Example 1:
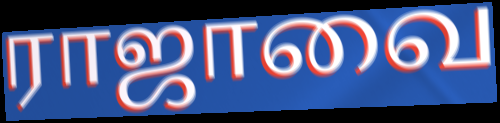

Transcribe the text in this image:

ராஜாவை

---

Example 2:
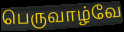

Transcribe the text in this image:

பெருவாழ்வே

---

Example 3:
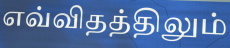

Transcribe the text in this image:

எவ்விதத்திலும்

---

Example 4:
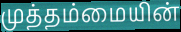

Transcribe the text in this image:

முத்தம்மையின்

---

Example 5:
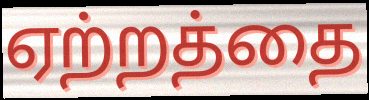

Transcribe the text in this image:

ஏற்றத்தை